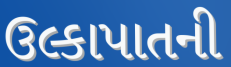
ઉલ્કાપાતની